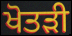
ਖੋਤੜੀ